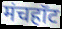
मंचहॉट